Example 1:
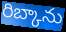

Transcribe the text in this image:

రిబ్కాను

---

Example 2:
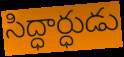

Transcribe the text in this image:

సిద్ధార్ధుడు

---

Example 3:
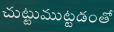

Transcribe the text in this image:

చుట్టుముట్టడంతో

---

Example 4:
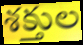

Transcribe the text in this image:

శక్తుల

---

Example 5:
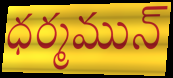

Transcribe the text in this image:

ధర్మమున్